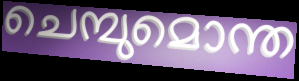
ചെമ്പുമൊന്ത